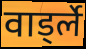
वार्ड्ले